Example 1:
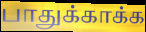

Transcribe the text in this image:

பாதுக்காக்க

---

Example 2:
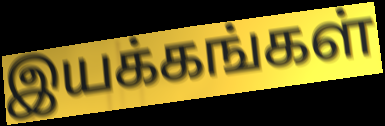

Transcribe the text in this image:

இயக்கங்கள்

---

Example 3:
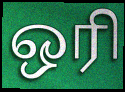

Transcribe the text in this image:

ஒரி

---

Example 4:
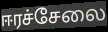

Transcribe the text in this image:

ஈரச்சேலை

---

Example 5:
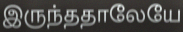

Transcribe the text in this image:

இருந்ததாலேயே